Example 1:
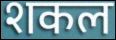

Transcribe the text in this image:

शकल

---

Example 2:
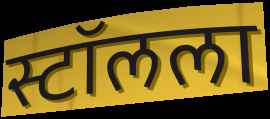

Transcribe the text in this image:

स्टॉलला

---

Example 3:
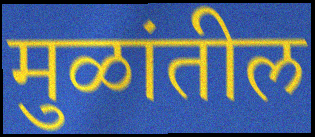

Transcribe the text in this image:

मुळांतील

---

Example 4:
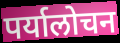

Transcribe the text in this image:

पर्यालोचन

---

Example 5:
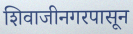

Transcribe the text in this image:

शिवाजीनगरपासून